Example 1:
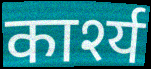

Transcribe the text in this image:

कार्श्य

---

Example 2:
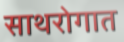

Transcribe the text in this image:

साथरोगात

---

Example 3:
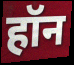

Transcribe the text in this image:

हॉन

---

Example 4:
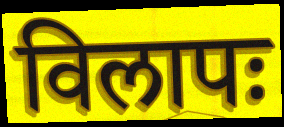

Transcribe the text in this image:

विलापः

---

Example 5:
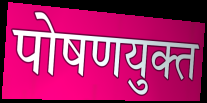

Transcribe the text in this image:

पोषणयुक्त